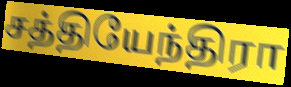
சத்தியேந்திரா